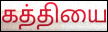
கத்தியை